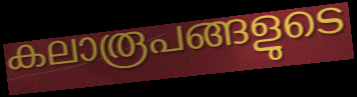
കലാരൂപങ്ങളുടെ